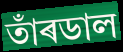
তাঁৰডাল